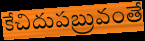
కేచిదుపబ్రువంతే